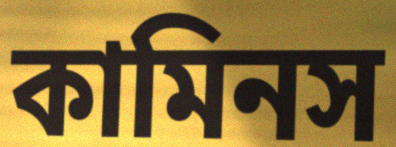
কামিনস